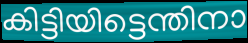
കിട്ടിയിട്ടെന്തിനാ